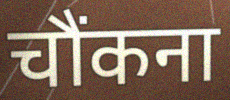
चौंकना